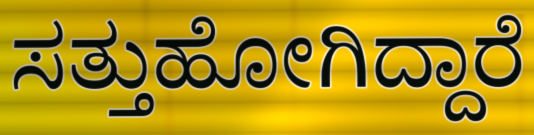
ಸತ್ತುಹೋಗಿದ್ದಾರೆ